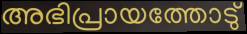
അഭിപ്രായത്തോടു്